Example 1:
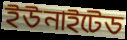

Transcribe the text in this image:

ইউনাইটেড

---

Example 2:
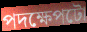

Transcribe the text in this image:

পদক্ষেপটো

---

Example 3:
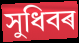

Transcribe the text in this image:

সুধিবৰ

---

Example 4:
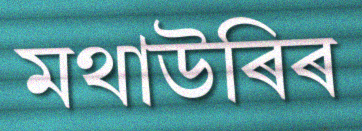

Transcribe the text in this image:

মথাউৰিৰ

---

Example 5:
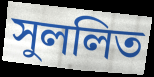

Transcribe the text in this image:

সুললিত